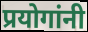
प्रयोगांनी